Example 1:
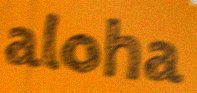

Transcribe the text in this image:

aloha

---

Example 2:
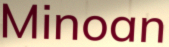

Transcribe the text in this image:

Minoan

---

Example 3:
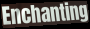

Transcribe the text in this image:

Enchanting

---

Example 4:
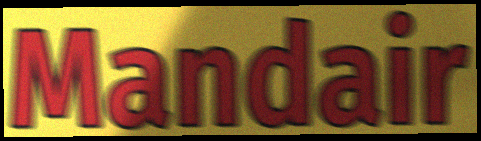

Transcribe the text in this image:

Mandair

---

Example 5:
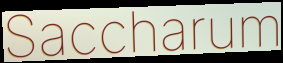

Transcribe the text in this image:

Saccharum